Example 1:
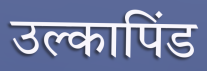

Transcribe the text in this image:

उल्‍कापिंड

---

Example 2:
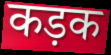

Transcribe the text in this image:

कड़क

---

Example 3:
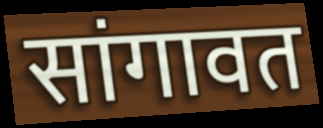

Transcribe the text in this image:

सांगावत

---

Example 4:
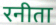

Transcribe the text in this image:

रनीता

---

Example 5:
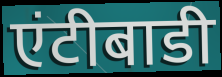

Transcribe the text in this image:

एंटीबाडी